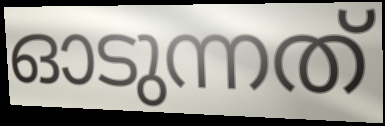
ഓടുന്നത്